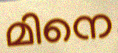
മിനെ